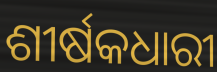
ଶୀର୍ଷକଧାରୀ